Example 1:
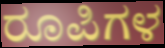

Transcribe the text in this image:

ರೂಪಿಗಳ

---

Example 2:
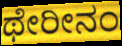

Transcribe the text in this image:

ಥೇರೀನಂ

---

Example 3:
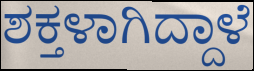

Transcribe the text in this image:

ಶಕ್ತಳಾಗಿದ್ದಾಳೆ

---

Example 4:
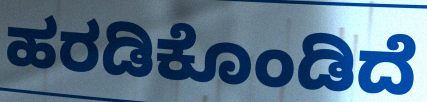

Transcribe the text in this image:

ಹರಡಿಕೊಂಡಿದೆ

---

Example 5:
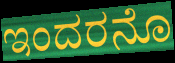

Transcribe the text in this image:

ಇಂದರನೊ